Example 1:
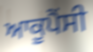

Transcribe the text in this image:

ਆਕੂਪੈਂਸੀ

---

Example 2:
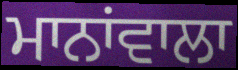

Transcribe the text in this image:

ਮਾਨਾਂਵਾਲਾ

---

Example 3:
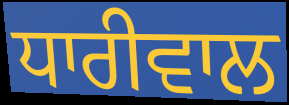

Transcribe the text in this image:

ਧਾਰੀਵਾਲ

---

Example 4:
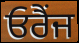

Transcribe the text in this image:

ਓਰੈਂਜ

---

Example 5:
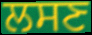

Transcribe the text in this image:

ਲਸਣ